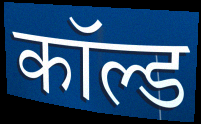
कॉल्ड